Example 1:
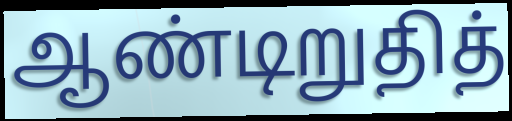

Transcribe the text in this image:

ஆண்டிறுதித்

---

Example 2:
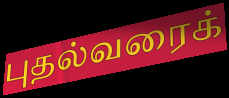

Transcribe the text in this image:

புதல்வரைக்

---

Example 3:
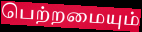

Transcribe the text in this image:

பெற்றமையும்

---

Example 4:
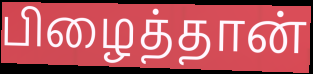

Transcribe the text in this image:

பிழைத்தான்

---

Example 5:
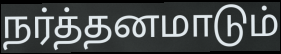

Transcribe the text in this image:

நர்த்தனமாடும்